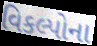
વિકલ્પોના